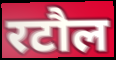
रटौल